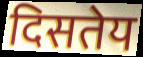
दिसतेय